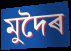
মুদৈৰ